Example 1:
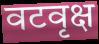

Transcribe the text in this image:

वटवृक्ष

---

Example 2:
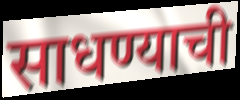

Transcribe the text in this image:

साधण्याची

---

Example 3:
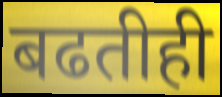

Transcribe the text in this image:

बढतीही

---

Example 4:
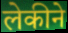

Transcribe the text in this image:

लेकीने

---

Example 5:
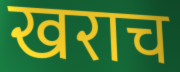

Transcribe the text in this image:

खराच